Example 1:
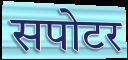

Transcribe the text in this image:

सपोटर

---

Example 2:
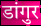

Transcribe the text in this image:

डांगुर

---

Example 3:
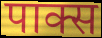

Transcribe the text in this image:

पाक्स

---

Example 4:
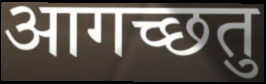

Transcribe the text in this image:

आगच्छतु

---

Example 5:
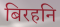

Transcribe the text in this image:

बिरहनि